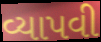
વ્યાપવી